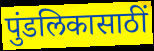
पुंडलिकासाठीं